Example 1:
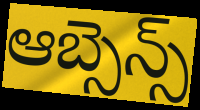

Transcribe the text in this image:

ఆబ్సెన్స్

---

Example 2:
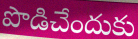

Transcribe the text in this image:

పొడిచేందుకు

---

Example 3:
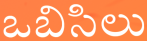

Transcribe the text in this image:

ఒబిసిలు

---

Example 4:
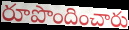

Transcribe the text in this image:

రూపొందించారు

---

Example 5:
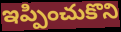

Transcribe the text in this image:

ఇప్పించుకొని